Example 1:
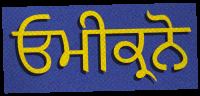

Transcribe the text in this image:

ਓਮੀਕ੍ਰਨੋ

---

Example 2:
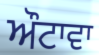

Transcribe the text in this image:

ਔਟਾਵਾ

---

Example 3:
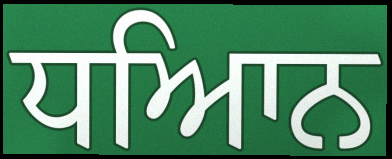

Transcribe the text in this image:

ਧਆਿਨ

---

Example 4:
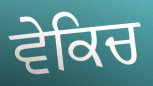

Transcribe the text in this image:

ਵੇਕਿਚ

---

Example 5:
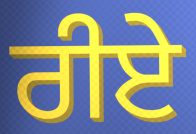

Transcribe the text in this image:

ਰੀਏ